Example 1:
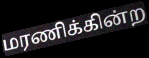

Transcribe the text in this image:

மரணிக்கின்ற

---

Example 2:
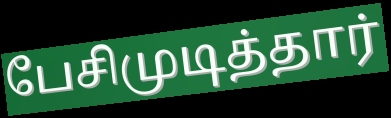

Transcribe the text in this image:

பேசிமுடித்தார்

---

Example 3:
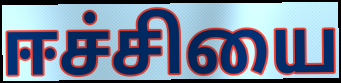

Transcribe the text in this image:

ஈச்சியை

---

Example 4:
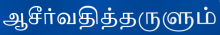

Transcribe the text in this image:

ஆசீர்வதித்தருளும்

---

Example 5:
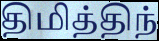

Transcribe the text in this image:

திமித்திந்